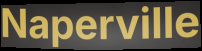
Naperville